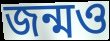
জন্মও